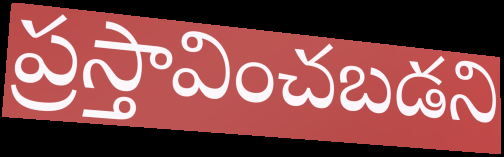
ప్రస్తావించబడని